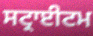
ਸਟ੍ਰਾਈਟਮ